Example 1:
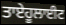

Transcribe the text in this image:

ਤਾਏਹੂਲਾਈਟ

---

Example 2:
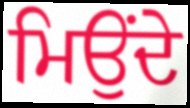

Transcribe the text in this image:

ਮਿਉਂਦੇ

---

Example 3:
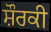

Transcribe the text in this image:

ਸ਼ੌਰਕੀ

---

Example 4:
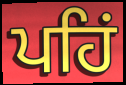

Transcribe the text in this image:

ਪਹਿਂ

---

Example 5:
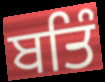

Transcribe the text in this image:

ਬਤਿੰ